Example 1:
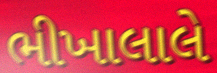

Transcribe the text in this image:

ભીખાલાલે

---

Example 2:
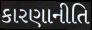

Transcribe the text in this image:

કારણાનીતિ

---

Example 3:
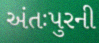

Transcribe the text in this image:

અંતઃપુરની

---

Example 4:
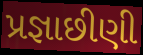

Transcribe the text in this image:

પ્રજ્ઞાછીણી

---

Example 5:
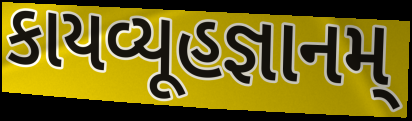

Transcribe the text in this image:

કાયવ્યૂહજ્ઞાનમ્